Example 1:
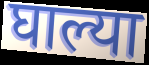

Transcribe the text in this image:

घाल्या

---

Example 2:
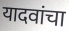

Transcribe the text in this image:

यादवांचा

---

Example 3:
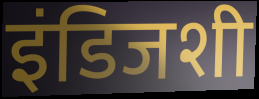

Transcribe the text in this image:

इंडिजशी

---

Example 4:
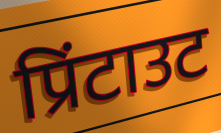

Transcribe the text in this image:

प्रिंटाउट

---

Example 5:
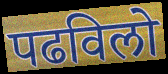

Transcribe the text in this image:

पढविलो